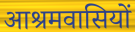
आश्रमवासियों